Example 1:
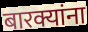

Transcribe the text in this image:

बारक्यांना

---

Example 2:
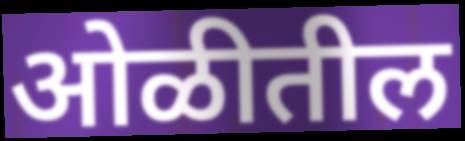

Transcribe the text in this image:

ओळीतील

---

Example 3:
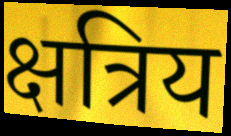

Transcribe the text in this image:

क्षत्रिय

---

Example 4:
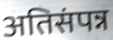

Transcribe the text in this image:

अतिसंपन्न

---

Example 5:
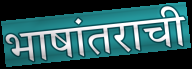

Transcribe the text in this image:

भाषांतराची